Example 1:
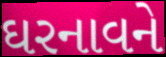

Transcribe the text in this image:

ઘરનાવને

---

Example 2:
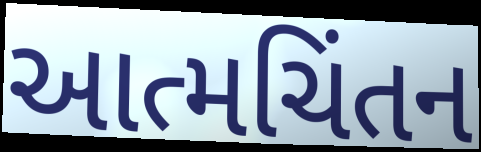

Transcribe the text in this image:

આત્મચિંતન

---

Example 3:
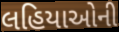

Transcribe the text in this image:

લહિયાઓની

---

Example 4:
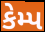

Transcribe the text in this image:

કેમ્પ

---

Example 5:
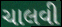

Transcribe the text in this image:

ચાલવી